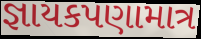
જ્ઞાયકપણામાત્ર